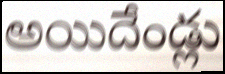
అయిదేండ్లు